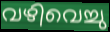
വഴിവെച്ചു